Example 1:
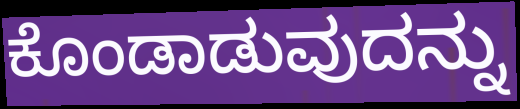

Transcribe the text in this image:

ಕೊಂಡಾಡುವುದನ್ನು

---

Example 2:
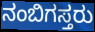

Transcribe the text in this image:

ನಂಬಿಗಸ್ತರು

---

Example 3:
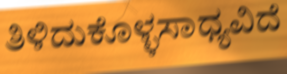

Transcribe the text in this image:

ತಿಳಿದುಕೊಳ್ಳಸಾಧ್ಯವಿದೆ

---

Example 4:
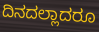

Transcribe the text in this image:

ದಿನದಲ್ಲಾದರೂ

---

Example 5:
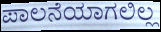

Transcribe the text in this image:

ಪಾಲನೆಯಾಗಲಿಲ್ಲ